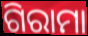
ଗିରାମା